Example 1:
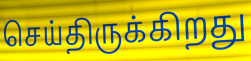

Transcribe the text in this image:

செய்திருக்கிறது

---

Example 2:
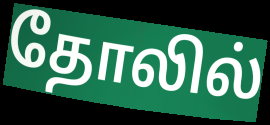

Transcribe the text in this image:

தோலில்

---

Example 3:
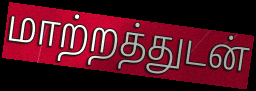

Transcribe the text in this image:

மாற்றத்துடன்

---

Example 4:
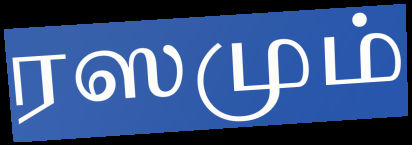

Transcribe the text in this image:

ரஸமும்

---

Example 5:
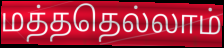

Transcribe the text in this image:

மத்ததெல்லாம்